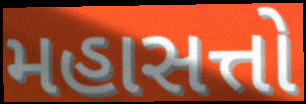
મહાસત્તો